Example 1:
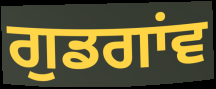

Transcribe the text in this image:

ਗੁਡਗਾਂਵ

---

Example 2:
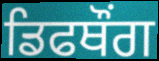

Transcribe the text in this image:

ਡਿਫਥੌਂਗ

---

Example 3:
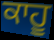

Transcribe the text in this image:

ਕਾਹੂ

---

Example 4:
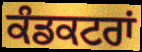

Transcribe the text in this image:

ਕੰਡਕਟਰਾਂ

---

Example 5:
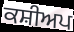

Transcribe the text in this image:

ਕਸ਼ੀਅਪ